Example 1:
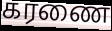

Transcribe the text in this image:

கரணை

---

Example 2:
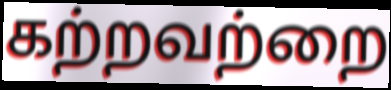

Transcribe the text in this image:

கற்றவற்றை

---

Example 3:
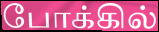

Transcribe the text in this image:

போக்கில்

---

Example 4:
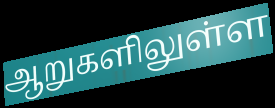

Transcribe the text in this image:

ஆறுகளிலுள்ள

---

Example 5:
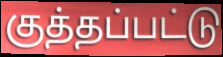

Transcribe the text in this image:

குத்தப்பட்டு